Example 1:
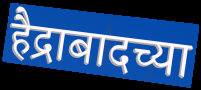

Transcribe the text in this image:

हैद्राबादच्या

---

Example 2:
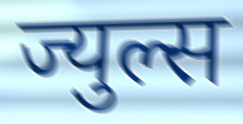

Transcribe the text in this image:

ज्युल्स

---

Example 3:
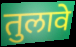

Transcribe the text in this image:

तुलावे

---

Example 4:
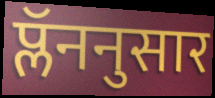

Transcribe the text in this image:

प्लॅननुसार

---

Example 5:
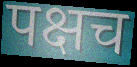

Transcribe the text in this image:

पक्षच